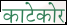
काटेकोर